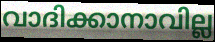
വാദിക്കാനാവില്ല